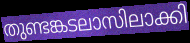
തുണ്ടങ്കടലാസിലാക്കി